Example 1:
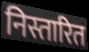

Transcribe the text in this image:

निस्तारित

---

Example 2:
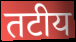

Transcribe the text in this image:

तटीय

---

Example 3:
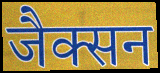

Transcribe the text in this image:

जैक्सन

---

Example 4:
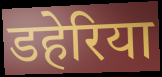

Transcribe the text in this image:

डहेरिया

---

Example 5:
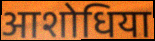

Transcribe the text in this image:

आशोधिया